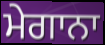
ਮੇਗਾਨਾ